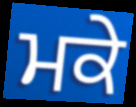
ਮਕੇ